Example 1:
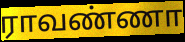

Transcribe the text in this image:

ராவண்ணா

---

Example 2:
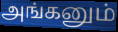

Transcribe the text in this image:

அங்கனும்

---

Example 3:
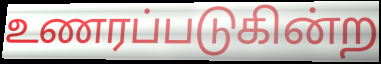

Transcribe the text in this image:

உணரப்படுகின்ற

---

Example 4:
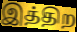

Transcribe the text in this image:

இத்திற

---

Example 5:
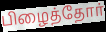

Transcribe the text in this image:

பிழைத்தோர்